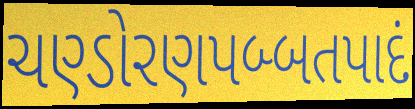
ચણ્ડોરણપબ્બતપાદં